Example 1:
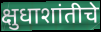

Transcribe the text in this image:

क्षुधाशांतीचे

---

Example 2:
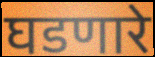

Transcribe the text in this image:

घडणारे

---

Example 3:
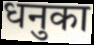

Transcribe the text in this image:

धनुका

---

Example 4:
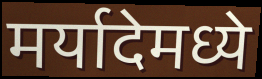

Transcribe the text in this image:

मर्यादेमध्ये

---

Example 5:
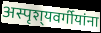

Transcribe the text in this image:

अस्पृश्यवर्गीयांना